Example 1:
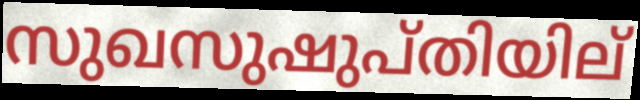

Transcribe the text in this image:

സുഖസുഷുപ്തിയില്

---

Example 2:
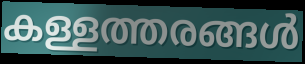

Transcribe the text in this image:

കള്ളത്തരങ്ങൾ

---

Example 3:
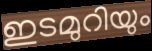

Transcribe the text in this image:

ഇടമുറിയും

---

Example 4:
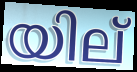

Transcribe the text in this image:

യില്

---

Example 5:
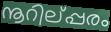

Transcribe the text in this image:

നൂറില്പ്പരം